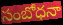
సంబోధనా